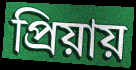
প্রিয়ায়